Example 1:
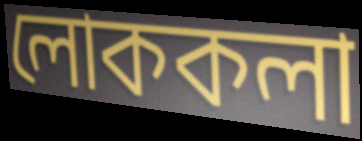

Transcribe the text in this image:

লোককলা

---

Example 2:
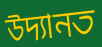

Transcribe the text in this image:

উদ্যানত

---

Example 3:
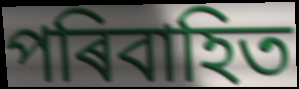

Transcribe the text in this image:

পৰিবাহিত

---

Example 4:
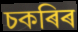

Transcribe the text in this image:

চকৰিৰ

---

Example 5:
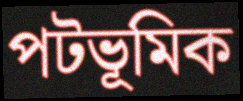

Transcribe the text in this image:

পটভূমিক